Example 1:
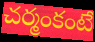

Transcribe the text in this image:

చర్మంకంటే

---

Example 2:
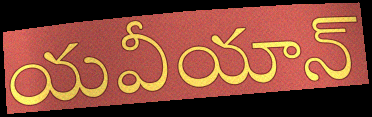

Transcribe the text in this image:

యవీయాన్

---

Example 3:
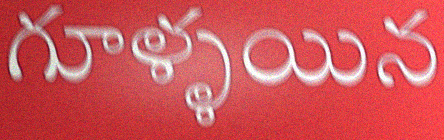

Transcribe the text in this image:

గూళ్ళయిన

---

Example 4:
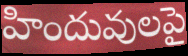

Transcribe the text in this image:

హిందువులపై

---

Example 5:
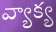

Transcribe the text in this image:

వ్యాక్య